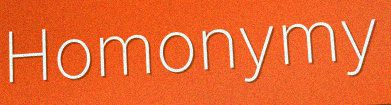
Homonymy